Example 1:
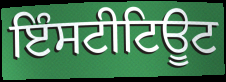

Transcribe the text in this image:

ਇੰਸਟੀਟਿਊਟ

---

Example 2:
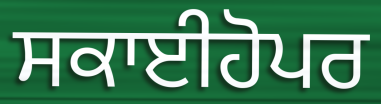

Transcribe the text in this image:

ਸਕਾਈਹੋਪਰ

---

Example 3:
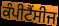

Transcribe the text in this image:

ਕੰਪੀਟੈਂਸੀਜ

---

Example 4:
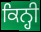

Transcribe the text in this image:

ਕਿਨ੍ਹੀ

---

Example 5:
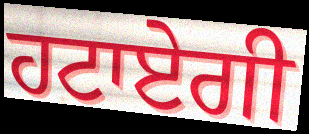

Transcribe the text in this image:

ਹਟਾਏਗੀ